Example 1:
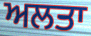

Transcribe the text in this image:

ਅਲਤਾ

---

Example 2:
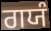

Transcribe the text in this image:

ਗਯੰ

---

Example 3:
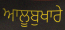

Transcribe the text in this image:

ਆਲੂਬੁਖਾਰੇ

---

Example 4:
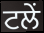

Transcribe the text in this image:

ਟਲੇਂ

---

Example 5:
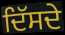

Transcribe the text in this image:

ਦਿੱਸਦੇ